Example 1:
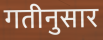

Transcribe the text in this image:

गतीनुसार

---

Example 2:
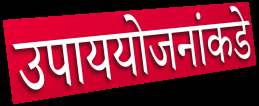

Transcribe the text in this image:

उपाययोजनांकडे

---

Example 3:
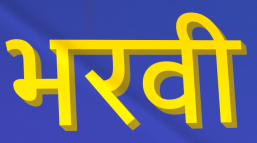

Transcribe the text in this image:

भरवी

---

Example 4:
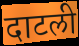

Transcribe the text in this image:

दाटली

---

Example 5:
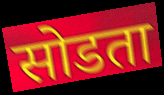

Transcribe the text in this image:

सोडता